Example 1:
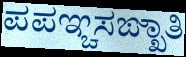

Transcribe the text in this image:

ಪಪಞ್ಚಸಙ್ಖಾತಿ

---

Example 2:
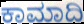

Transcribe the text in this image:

ಕಾಮಾದಿ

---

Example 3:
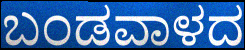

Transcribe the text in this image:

ಬಂಡವಾಳದ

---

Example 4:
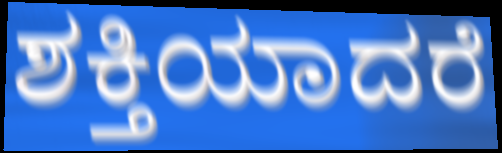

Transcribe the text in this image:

ಶಕ್ತಿಯಾದರೆ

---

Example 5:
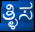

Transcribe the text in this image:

ತ್ಳಿಸ